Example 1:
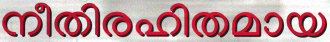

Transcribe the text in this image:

നീതിരഹിതമായ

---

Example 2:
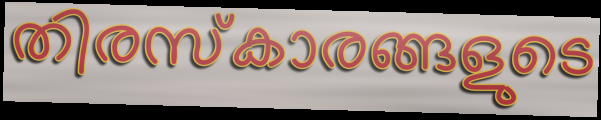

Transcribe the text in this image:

തിരസ്കാരങ്ങളുടെ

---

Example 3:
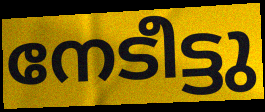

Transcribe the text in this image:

നേടീട്ടു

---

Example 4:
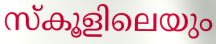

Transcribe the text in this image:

സ്കൂളിലെയും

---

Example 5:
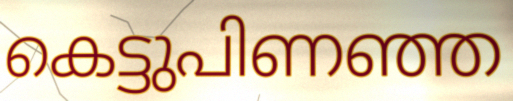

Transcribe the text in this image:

കെട്ടുപിണഞ്ഞ